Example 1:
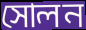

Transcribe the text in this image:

সোলন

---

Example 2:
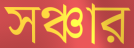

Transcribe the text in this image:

সঞ্চার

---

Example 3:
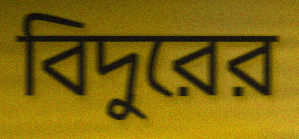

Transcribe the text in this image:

বিদুরের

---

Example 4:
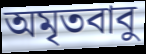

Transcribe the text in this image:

অমৃতবাবু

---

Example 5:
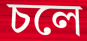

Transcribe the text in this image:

চলে